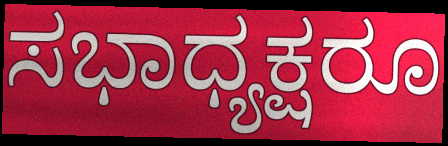
ಸಭಾಧ್ಯಕ್ಷರೂ